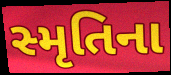
સ્મૃતિના